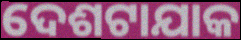
ଦେଶଟାଯାକ